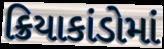
ક્રિયાકાંડોમાં